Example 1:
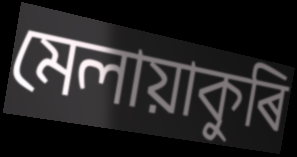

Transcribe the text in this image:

মেলায়াকুৰি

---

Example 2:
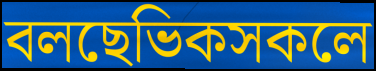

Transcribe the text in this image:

বলছেভিকসকলে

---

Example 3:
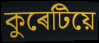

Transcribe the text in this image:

কুৰেটিয়ে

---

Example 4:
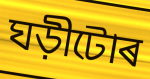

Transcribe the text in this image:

ঘড়ীটোৰ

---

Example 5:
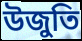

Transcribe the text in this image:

উজুতি